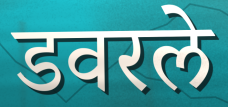
डवरले